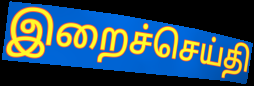
இறைச்செய்தி